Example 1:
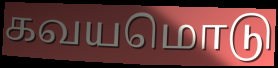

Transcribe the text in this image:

கவயமொடு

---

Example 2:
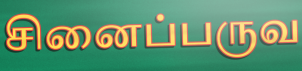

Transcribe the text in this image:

சினைப்பருவ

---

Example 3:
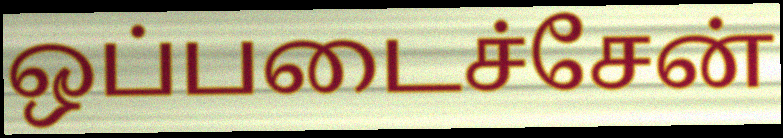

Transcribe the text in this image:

ஒப்படைச்சேன்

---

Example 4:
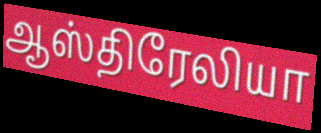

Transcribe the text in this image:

ஆஸ்திரேலியா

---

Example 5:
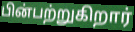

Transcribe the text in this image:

பின்பற்றுகிறார்